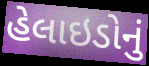
હેલાઇડોનું